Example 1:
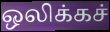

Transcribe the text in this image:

ஒலிக்கச்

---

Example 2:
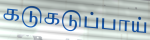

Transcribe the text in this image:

கடுகடுப்பாய்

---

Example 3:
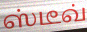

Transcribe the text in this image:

ஸ்டீவ்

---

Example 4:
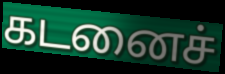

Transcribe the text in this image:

கடனைச்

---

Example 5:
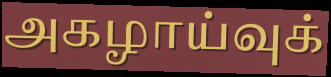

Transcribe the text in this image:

அகழாய்வுக்